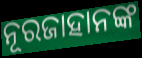
ନୂରଜାହାନଙ୍କ